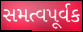
સમત્વપૂર્વક